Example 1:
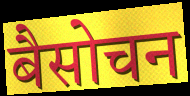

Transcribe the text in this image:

बैसोचन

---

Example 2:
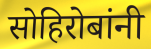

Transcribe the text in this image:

सोहिरोबांनी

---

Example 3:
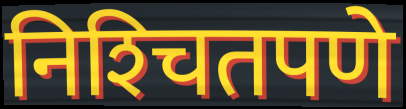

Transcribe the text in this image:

निश्‍चितपणे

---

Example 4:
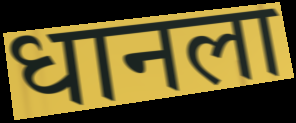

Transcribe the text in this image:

धानला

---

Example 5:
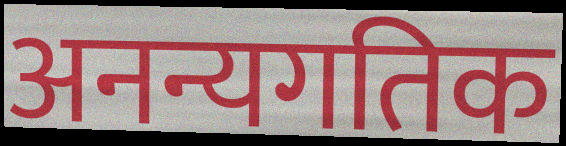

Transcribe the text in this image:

अनन्यगतिक